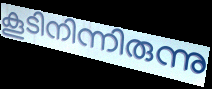
കൂടിനിന്നിരുന്നു